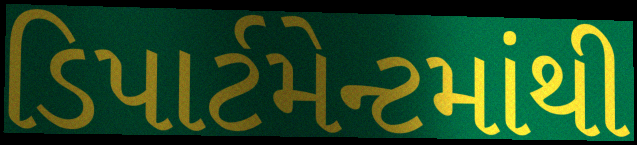
ડિપાર્ટમેન્ટમાંથી